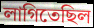
লাগিতেছিল